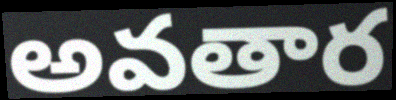
అవతార